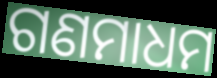
ଗଣମାଧମ